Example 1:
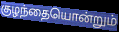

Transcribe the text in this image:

குழந்தையொன்றும்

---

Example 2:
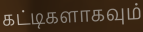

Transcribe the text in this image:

கட்டிகளாகவும்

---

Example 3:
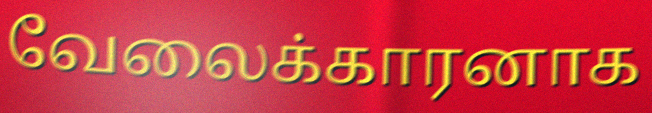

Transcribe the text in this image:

வேலைக்காரனாக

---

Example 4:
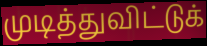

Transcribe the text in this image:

முடித்துவிட்டுக்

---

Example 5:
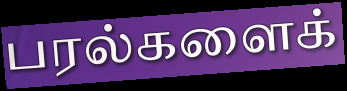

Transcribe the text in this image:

பரல்களைக்